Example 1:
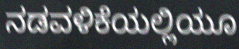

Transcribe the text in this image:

ನಡವಳಿಕೆಯಲ್ಲಿಯೂ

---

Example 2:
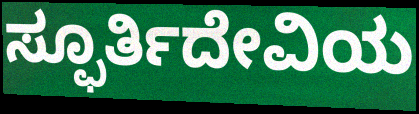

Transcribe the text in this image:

ಸ್ಫೂರ್ತಿದೇವಿಯ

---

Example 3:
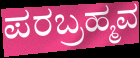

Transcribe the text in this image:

ಪರಬ್ರಹ್ಮವ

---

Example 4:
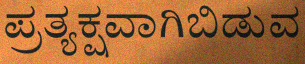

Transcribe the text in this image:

ಪ್ರತ್ಯಕ್ಷವಾಗಿಬಿಡುವ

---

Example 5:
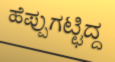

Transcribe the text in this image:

ಹೆಪ್ಪುಗಟ್ಟಿದ್ದ